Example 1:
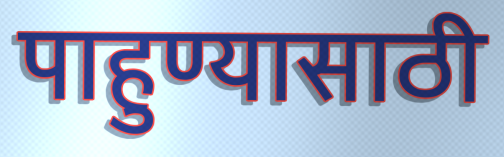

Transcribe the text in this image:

पाहुण्यासाठी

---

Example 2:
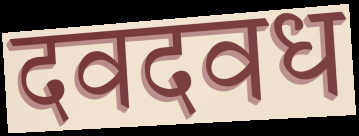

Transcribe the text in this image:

दवदवध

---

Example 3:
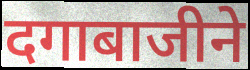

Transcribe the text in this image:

दगाबाजीने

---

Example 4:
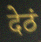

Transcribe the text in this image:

देठं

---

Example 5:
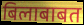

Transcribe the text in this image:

बिलाबाबत